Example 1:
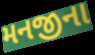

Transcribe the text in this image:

મનજીના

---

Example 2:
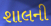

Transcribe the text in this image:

શાલની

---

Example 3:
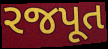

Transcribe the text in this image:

રજપૂત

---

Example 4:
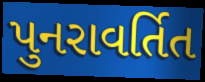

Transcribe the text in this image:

પુનરાવર્તિત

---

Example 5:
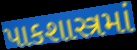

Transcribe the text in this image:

પાકશાસ્ત્રમાં